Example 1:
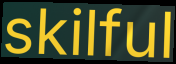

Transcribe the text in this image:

skilful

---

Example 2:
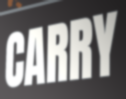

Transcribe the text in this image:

CARRY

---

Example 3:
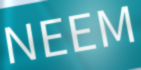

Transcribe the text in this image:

NEEM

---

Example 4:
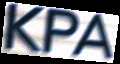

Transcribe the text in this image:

KPA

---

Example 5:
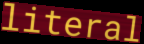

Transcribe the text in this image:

literal